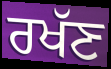
ਰਖੱਣ